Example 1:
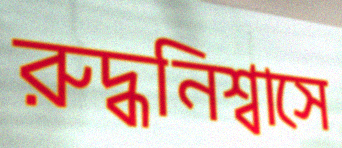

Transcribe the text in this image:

রুদ্ধনিশ্বাসে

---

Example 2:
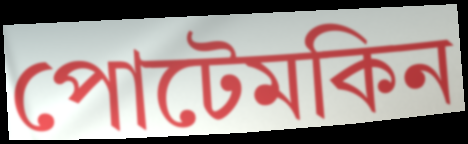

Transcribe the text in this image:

পোটেমকিন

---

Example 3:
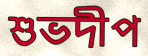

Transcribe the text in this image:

শুভদীপ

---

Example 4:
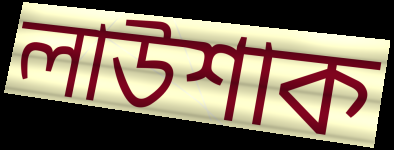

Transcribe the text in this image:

লাউশাক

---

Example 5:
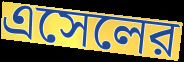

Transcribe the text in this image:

এসেলের